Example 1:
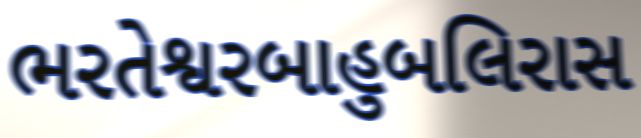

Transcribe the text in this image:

ભરતેશ્વરબાહુબલિરાસ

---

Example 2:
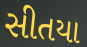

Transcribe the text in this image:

સીતયા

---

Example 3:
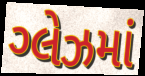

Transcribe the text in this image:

ગ્લેઝમાં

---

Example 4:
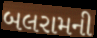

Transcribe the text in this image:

બલરામની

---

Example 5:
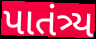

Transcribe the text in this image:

પાતંત્ર્ય